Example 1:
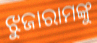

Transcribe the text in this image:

ଝୁଜାରାମଙ୍କୁ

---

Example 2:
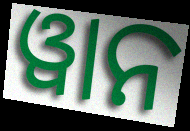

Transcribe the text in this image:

ୱାନ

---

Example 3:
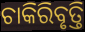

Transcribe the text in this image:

ଚାକିରିବୃତ୍ତି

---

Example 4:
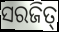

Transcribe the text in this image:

ସରଜିତ୍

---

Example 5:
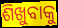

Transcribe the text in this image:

ଶିଖୁବାକୁ